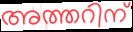
അത്തറിന്